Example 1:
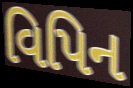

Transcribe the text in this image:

વિપિન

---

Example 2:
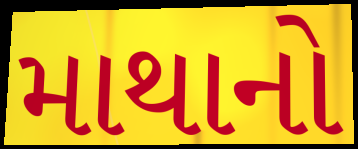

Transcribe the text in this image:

માથાનો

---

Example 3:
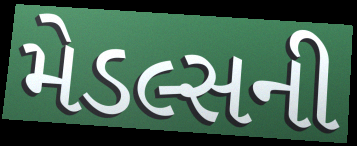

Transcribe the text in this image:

મેડલ્સની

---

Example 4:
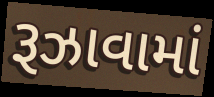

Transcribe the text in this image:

રૂઝાવામાં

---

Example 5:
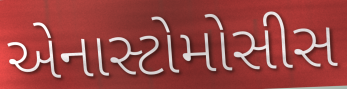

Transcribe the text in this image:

એનાસ્ટોમોસીસ